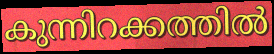
കുന്നിറക്കത്തിൽ